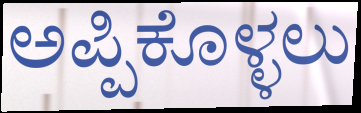
ಅಪ್ಪಿಕೊಳ್ಳಲು